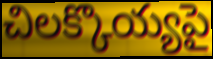
చిలక్కొయ్యపై